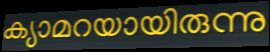
ക്യാമറയായിരുന്നു